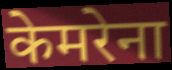
केमरेना